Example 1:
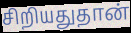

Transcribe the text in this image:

சிறியதுதான்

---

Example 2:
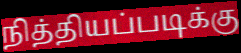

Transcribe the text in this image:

நித்தியப்படிக்கு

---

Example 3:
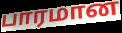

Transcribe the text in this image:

பாரமான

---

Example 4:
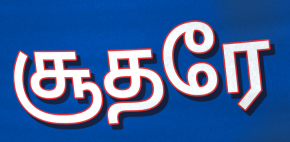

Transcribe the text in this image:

சூதரே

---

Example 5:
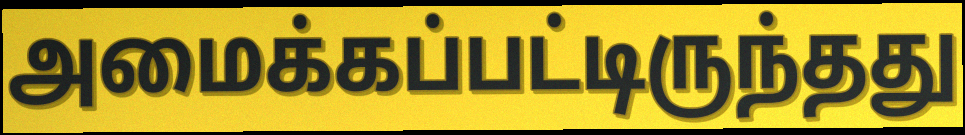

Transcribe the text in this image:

அமைக்கப்பட்டிருந்தது